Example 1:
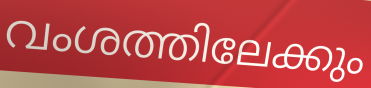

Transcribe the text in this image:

വംശത്തിലേക്കും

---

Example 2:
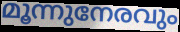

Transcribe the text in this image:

മൂന്നുനേരവും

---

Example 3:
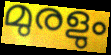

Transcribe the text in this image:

മുരളും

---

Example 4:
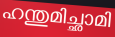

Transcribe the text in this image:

ഹന്തുമിച്ഛാമി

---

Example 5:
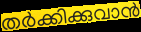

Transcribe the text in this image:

തർക്കിക്കുവാൻ